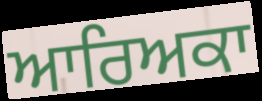
ਆਰਿਅਕਾ